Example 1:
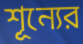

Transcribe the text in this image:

শূন্যের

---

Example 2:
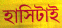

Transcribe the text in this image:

হাসিটাই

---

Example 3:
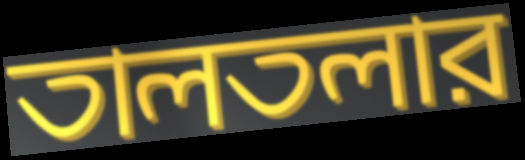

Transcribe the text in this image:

তালতলার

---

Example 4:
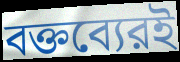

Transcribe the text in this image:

বক্তব্যেরই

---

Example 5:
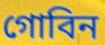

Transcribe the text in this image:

গোবিন